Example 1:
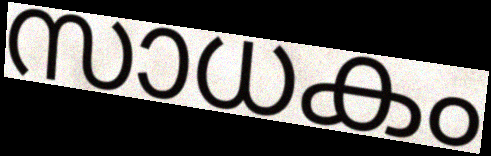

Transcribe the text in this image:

സാധകം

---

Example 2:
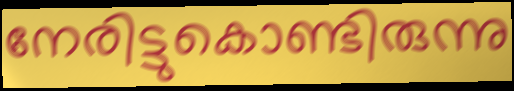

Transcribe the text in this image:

നേരിട്ടുകൊണ്ടിരുന്നു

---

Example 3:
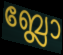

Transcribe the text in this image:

ബ്ലോ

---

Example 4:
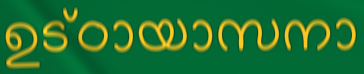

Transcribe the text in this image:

ഉട്ഠായാസനാ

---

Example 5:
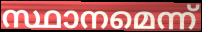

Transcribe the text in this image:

സ്ഥാനമെന്ന്